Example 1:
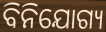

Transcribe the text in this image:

ବିନିଯୋଗ୍ୟ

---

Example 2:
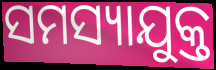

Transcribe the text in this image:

ସମସ୍ୟାଯୁକ୍ତ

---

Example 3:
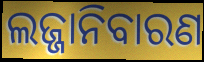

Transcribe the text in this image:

ଲଜ୍ଜାନିବାରଣ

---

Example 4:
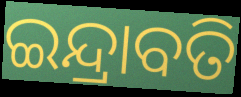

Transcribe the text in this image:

ଇନ୍ଦ୍ରାବତି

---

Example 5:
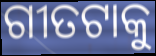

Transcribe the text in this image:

ଗୀତଟାକୁ